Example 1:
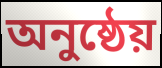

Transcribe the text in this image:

অনুষ্ঠেয়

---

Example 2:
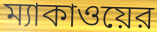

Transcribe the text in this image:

ম্যাকাওয়ের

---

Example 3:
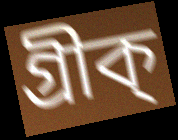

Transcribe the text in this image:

গ্রীক্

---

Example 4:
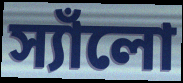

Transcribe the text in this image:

স্যাঁলো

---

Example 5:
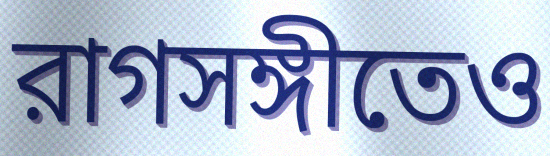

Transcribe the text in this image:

রাগসঙ্গীতেও